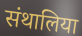
संथालिया